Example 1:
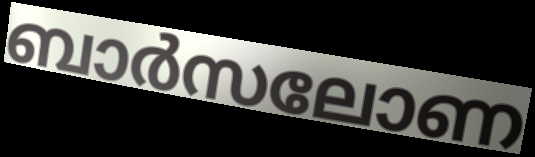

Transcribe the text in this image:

ബാർസലോണ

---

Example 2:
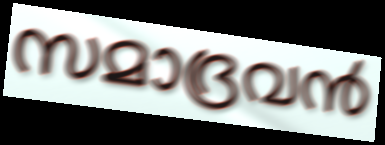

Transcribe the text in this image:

സമാദ്രവൻ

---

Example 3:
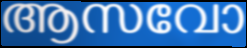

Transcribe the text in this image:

ആസവോ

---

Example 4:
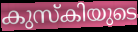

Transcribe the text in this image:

കുസ്കിയുടെ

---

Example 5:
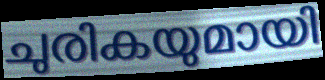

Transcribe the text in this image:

ചുരികയുമായി